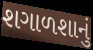
શગાળશાનું